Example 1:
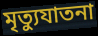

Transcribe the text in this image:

মৃত্যুযাতনা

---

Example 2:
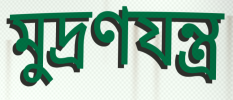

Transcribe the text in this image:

মুদ্রণযন্ত্র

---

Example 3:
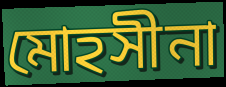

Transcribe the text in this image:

মোহসীনা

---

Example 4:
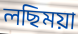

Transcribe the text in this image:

লছিময়া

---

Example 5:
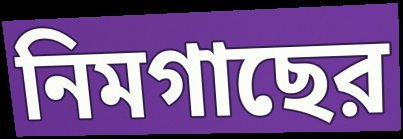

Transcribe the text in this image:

নিমগাছের